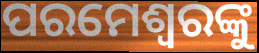
ପରମେଶ୍ୱରଙ୍କୁ